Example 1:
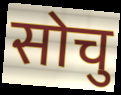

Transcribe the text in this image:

सोचु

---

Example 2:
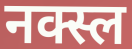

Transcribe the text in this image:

नक्स्ल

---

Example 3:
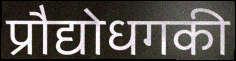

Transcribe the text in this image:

प्रौद्योधगकी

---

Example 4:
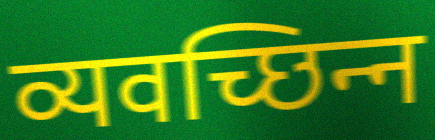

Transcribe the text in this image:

व्यवच्छिन्न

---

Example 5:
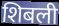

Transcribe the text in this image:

शिबली